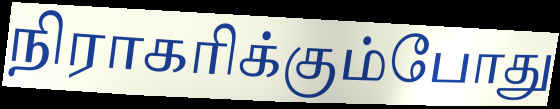
நிராகரிக்கும்போது